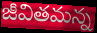
జీవితమన్న